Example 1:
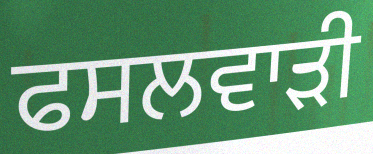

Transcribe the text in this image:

ਫਸਲਵਾੜੀ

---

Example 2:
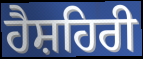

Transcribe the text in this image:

ਹੈਸ਼ਹਿਰੀ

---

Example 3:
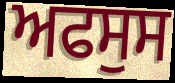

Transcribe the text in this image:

ਅਫਸੁਸ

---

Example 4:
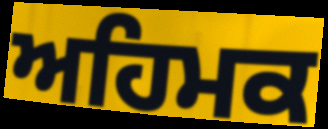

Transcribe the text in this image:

ਅਹਿਮਕ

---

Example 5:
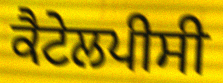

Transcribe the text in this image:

ਕੈਟੇਲਪੀਸੀ